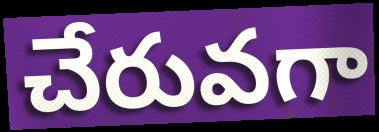
చేరువగా